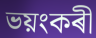
ভয়ংকৰী